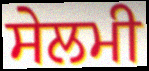
ਸੇਲਮੀ